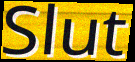
Slut